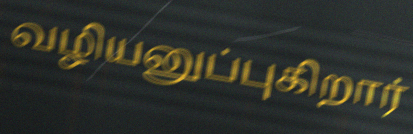
வழியனுப்புகிறார்